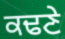
ਕਢਣੇ